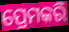
ପ୍ରେମକରି